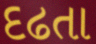
દઢતા